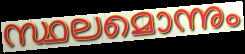
സ്ഥലമൊന്നും